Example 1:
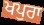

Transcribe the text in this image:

ਖਪੁਰਾ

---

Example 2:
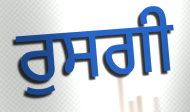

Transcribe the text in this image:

ਰੁਸਗੀ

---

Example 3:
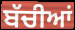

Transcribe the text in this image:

ਬੱਚੀਆਂ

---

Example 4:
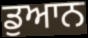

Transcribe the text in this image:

ਡੁਆਨ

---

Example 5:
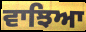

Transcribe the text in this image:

ਵਾਝਿਆ